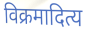
विक्रमादित्य